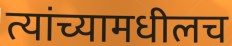
त्यांच्यामधीलच